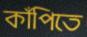
কাঁপিতে